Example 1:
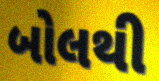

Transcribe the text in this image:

બોલથી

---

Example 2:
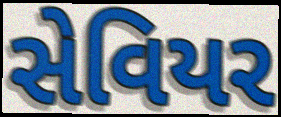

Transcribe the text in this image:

સેવિયર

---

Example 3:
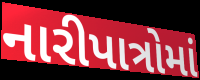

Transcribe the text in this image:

નારીપાત્રોમાં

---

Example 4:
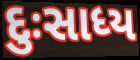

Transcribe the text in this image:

દુઃસાધ્ય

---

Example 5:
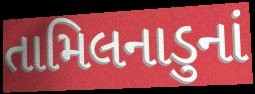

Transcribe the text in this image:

તામિલનાડુનાં